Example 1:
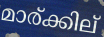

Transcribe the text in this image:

മാര്ക്കില്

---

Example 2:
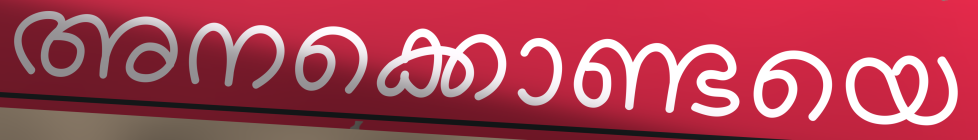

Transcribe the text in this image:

അനക്കൊണ്ടയെ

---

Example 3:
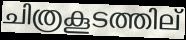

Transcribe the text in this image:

ചിത്രകൂടത്തില്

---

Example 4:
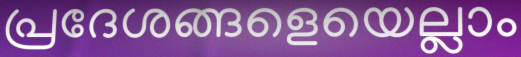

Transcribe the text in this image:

പ്രദേശങ്ങളെയെല്ലാം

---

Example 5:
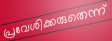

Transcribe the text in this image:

പ്രവേശിക്കരുതെന്ന്